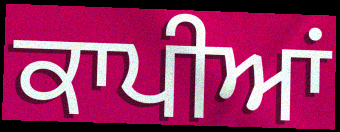
ਕਾਪੀਆਂ